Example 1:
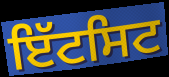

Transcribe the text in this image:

ਇੱਟਸਿਟ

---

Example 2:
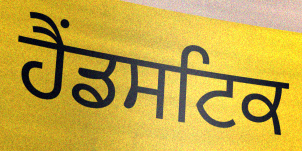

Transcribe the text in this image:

ਹੈਂਡਸਟਿਕ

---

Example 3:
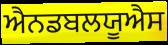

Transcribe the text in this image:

ਐਨਡਬਲਯੂਐਸ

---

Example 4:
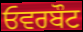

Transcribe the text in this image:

ਓਵਰਬੌਟ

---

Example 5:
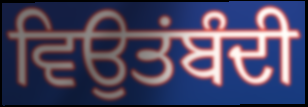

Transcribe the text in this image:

ਵਿਉਤਂਬੰਦੀ